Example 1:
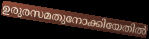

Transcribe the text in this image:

ഉരുരസമതുനോക്കിയേതിൽ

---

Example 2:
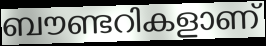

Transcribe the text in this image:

ബൗണ്ടറികളാണ്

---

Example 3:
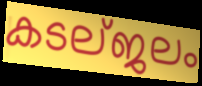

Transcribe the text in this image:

കടല്ജലം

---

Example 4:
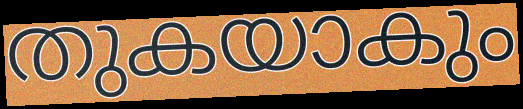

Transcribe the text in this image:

തുകയാകും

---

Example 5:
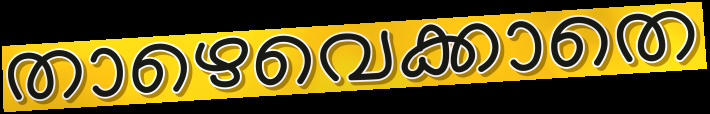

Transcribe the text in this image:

താഴെവെക്കാതെ